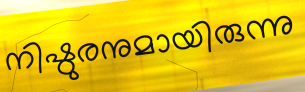
നിഷ്ഠുരനുമായിരുന്നു